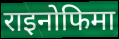
राइनोफिमा